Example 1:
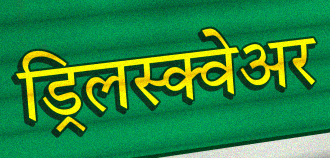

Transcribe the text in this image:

ड्रिलस्क्वेअर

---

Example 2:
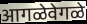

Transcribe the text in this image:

आगळेवेगळे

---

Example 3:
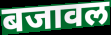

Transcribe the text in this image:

बजावल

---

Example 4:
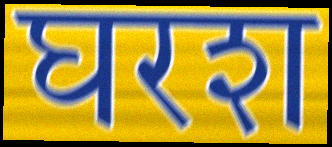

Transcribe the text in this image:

घरश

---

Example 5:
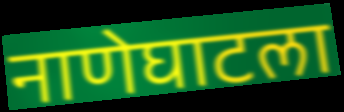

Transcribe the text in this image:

नाणेघाटला